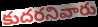
కుదరనివారు